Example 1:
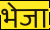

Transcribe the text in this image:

भेजा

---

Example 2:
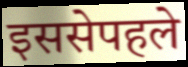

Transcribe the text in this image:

इससेपहले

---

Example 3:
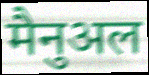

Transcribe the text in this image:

मैनुअल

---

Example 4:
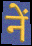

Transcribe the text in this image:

नें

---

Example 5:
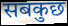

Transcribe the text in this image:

सबकुछ